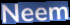
Neem